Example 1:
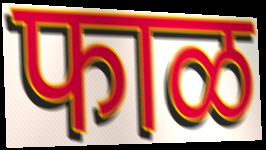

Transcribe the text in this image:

फाळ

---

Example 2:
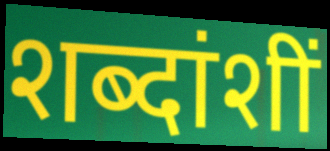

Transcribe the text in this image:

शब्दांशीं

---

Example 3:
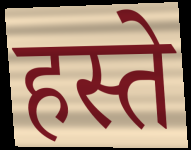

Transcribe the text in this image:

हस्ते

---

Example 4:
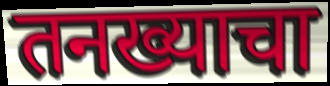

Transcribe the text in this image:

तनख्याचा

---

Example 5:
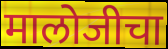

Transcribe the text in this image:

मालोजीचा